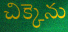
చిక్కెను